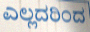
ಎಲ್ಲದರಿಂದ